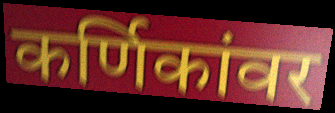
कर्णिकांवर